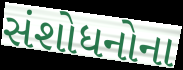
સંશોધનોના